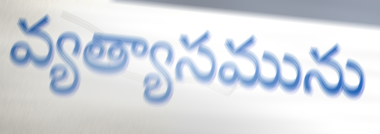
వ్యత్యాసమును